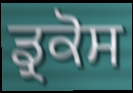
ਡ੍ਰਕੋਸ